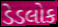
ડેડલોક